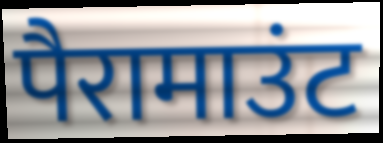
पैरामाउंट